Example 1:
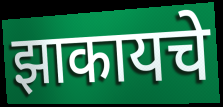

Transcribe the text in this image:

झाकायचे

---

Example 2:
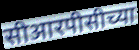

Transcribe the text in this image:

सीआरपीसीच्या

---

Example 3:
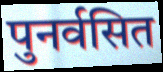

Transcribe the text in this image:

पुनर्वसित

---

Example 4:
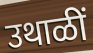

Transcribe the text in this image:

उथाळीं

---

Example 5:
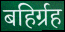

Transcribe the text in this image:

बहिर्ग्रह